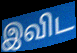
இவிட